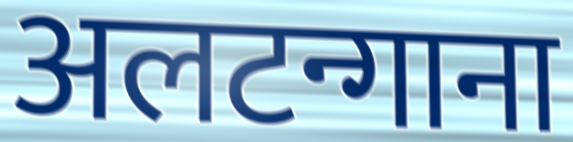
अलटन्गाना